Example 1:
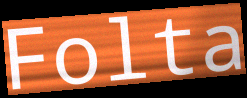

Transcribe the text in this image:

Folta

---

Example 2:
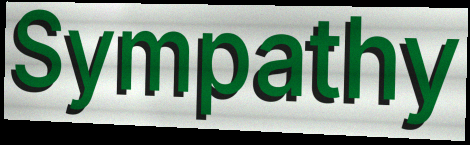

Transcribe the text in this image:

Sympathy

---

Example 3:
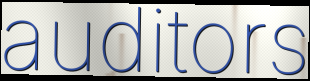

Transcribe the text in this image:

auditors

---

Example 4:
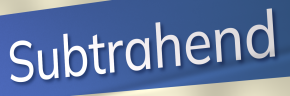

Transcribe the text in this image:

Subtrahend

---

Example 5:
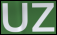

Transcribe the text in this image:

UZ